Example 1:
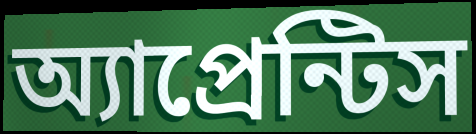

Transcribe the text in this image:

অ্যাপ্রেন্টিস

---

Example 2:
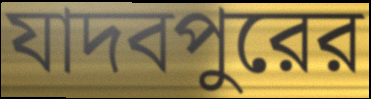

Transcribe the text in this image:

যাদবপুরের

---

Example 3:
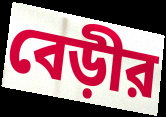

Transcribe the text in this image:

বেড়ীর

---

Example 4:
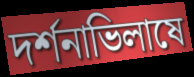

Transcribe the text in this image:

দর্শনাভিলাষে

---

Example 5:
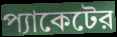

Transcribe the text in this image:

প্যাকেটের